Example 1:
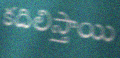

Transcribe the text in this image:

కదిలిస్తాయి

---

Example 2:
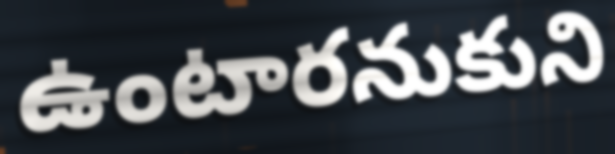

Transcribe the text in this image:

ఉంటారనుకుని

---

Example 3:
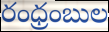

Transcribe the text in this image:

రంధ్రంబుల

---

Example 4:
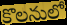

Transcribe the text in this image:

కొలనులో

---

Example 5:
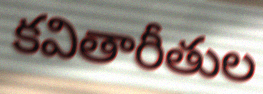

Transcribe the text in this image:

కవితారీతుల